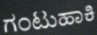
ಗಂಟುಹಾಕಿ